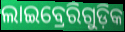
ଲାଇବ୍ରେରିଗୁଡ଼ିକ